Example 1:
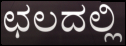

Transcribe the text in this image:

ಛಲದಲ್ಲಿ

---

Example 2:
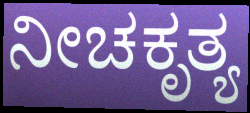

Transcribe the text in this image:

ನೀಚಕೃತ್ಯ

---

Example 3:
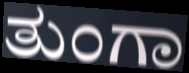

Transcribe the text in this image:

ತುಂಗಾ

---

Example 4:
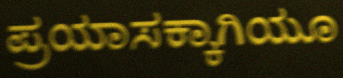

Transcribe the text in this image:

ಪ್ರಯಾಸಕ್ಕಾಗಿಯೂ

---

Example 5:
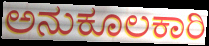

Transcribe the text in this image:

ಅನುಕೂಲಕಾರಿ